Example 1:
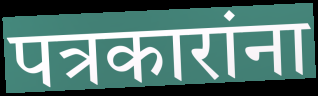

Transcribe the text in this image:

पत्रकारांना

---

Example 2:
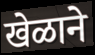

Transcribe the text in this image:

खेळाने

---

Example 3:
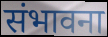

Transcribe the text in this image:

संभावना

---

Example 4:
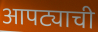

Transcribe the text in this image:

आपट्याची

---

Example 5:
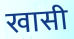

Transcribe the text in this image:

खासी